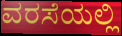
ವರಸೆಯಲ್ಲಿ